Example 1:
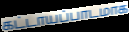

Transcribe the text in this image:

கட்டாயப்பாடமாக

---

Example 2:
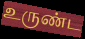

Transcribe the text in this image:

உருண்ட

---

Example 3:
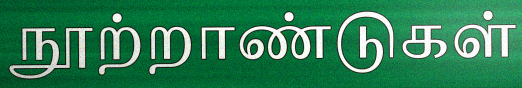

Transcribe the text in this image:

நூற்றாண்டுகள்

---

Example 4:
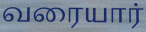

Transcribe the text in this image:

வரையார்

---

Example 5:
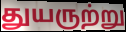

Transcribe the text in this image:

துயருற்று